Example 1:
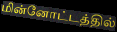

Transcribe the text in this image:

மின்னோட்டத்தில்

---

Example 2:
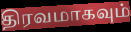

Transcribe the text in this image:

திரவமாகவும்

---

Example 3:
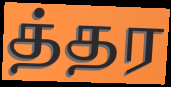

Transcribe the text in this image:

த்தர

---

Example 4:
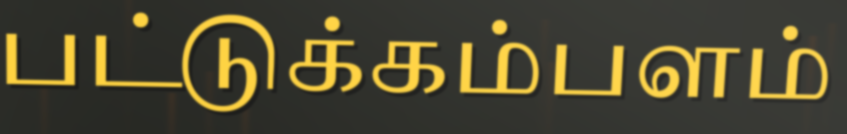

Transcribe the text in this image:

பட்டுக்கம்பளம்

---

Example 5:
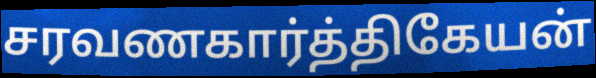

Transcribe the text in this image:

சரவணகார்த்திகேயன்